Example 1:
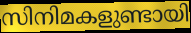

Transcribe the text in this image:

സിനിമകളുണ്ടായി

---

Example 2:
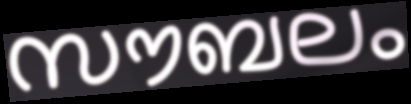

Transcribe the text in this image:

സൗബലം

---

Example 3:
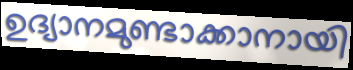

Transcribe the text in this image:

ഉദ്യാനമുണ്ടാക്കാനായി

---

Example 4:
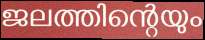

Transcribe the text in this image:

ജലത്തിന്റെയും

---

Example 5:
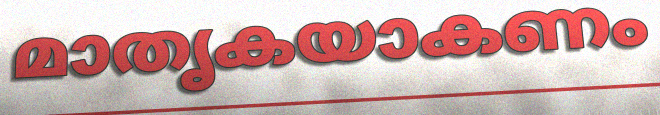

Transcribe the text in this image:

മാതൃകയാകണം